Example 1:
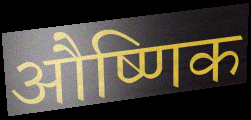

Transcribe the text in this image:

औष्णिक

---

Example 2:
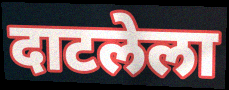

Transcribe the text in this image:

दाटलेला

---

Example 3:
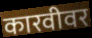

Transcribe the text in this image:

कारवीवर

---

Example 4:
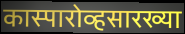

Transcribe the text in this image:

कास्पारोव्हसारख्या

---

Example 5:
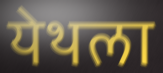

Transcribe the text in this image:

येथला